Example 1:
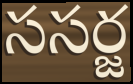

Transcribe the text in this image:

ససర్జ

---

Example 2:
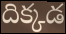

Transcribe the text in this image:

దిక్కడ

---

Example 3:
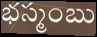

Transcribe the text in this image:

భస్మంబు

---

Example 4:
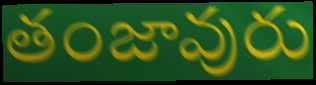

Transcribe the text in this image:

తంజావురు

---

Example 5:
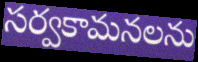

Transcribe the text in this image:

సర్వకామనలను